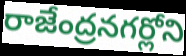
రాజేంద్రనగర్లోని